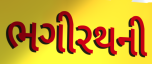
ભગીરથની